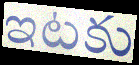
ఇటకు